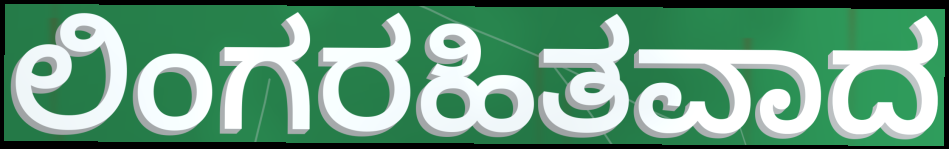
ಲಿಂಗರಹಿತವಾದ